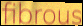
fibrous